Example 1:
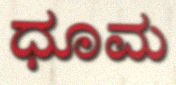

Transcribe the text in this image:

ಧೂಮ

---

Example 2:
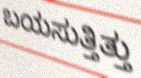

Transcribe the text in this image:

ಬಯಸುತ್ತಿತ್ತು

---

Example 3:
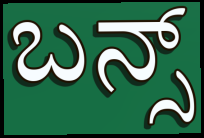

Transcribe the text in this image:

ಬನ್ಸ್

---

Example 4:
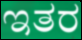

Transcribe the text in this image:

ಇತರ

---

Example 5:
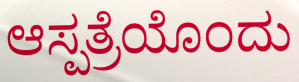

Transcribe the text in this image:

ಆಸ್ಪತ್ರೆಯೊಂದು